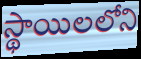
స్థాయిలలోని